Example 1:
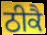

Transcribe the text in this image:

ਠੀਕੈ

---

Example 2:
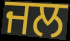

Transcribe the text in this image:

ਜਲ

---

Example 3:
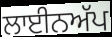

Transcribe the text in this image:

ਲਾਈਨਅੱਪ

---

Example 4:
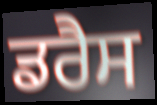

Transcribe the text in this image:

ਡਰੈਸ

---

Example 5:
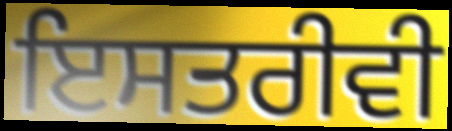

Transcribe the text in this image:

ਇਸਤਰੀਵੀ